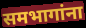
समभागांना